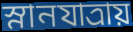
স্নানযাত্রায়